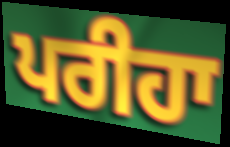
ਪਰੀਹਾ